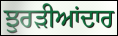
ਝੁਰੜੀਆਂਦਾਰ